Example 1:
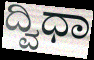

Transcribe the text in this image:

ದ್ವಿಧಾ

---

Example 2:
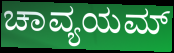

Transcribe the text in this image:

ಚಾವ್ಯಯಮ್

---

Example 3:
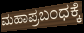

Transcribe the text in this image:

ಮಹಾಪ್ರಬಂಧಕ್ಕೆ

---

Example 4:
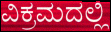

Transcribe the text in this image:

ವಿಕ್ರಮದಲ್ಲಿ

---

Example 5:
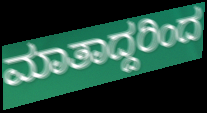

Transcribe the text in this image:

ಮಾತಾದ್ದರಿಂದ